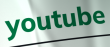
youtube